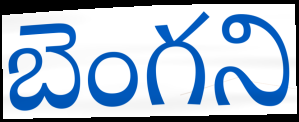
బెంగని